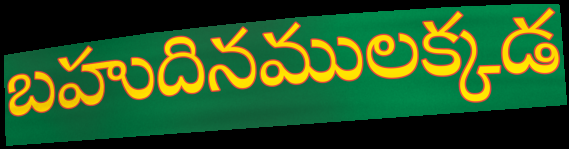
బహుదినములక్కడ